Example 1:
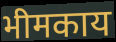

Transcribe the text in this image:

भीमकाय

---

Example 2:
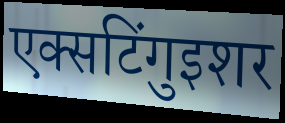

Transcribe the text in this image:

एक्सटिंगुइशर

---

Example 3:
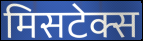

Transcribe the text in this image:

मिसटेक्स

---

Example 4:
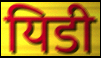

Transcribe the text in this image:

यिडी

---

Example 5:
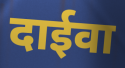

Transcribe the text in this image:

दाईवा